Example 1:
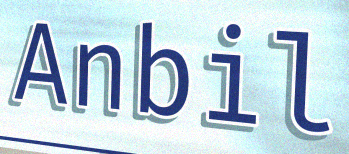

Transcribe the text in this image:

Anbil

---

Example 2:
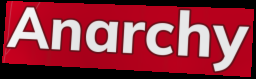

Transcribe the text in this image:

Anarchy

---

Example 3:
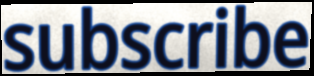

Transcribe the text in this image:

subscribe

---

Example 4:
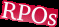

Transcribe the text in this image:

RPOs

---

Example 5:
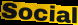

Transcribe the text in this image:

Social